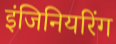
इंजिनियरिंग